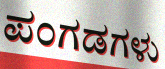
ಪಂಗಡಗಳು